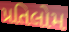
પ્રતિલોમ